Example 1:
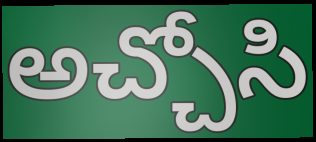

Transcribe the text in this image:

అచ్చోసి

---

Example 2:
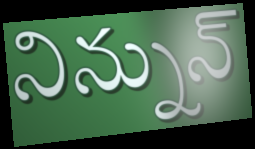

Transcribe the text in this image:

నిన్నున్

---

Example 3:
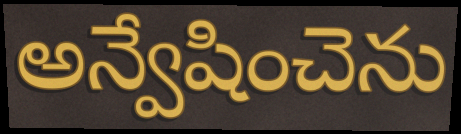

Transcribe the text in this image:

అన్వేషించెను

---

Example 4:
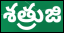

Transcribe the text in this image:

శత్రుజి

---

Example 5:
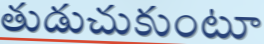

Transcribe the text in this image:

తుడుచుకుంటూ